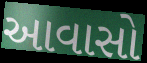
આવાસો